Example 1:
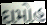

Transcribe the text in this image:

દામોહ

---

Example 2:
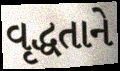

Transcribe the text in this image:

વૃદ્ધતાને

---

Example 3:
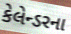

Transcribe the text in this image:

કેલેન્ડરના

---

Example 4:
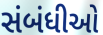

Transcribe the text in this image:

સંબંધીઓ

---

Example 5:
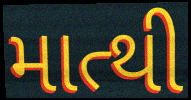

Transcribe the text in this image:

માત્થી